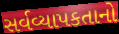
સર્વવ્યાપકતાનો